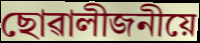
ছোৱালীজনীয়ে